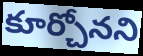
కూర్చోనని